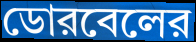
ডোরবেলের